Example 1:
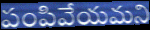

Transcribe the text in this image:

పంపివేయమని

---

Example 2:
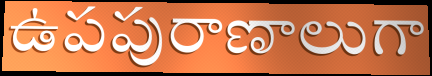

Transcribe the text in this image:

ఉపపురాణాలుగా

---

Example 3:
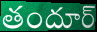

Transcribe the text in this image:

తందూర్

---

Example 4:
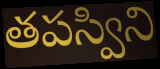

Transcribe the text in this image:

తపస్విని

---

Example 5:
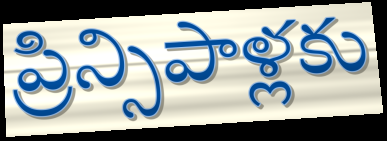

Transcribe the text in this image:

ప్రిన్సిపాళ్లకు